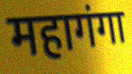
महागंगा